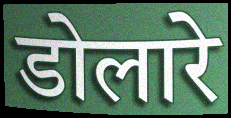
डोलारे